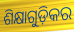
ଶିକ୍ଷାଗୁଡ଼ିକର